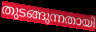
തുടങ്ങുന്നതായി